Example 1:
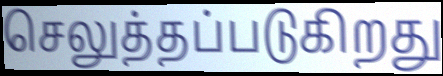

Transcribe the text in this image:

செலுத்தப்படுகிறது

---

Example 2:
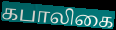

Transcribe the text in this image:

கபாலிகை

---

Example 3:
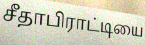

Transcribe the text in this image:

சீதாபிராட்டியை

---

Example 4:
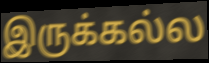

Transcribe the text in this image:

இருக்கல்ல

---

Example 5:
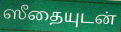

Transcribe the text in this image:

ஸீதையுடன்